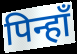
पिन्हाँ